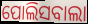
ପୋଲିସବାଲା